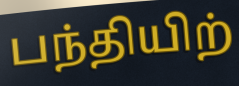
பந்தியிற்